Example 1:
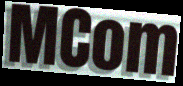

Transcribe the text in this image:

MCom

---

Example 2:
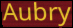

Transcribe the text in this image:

Aubry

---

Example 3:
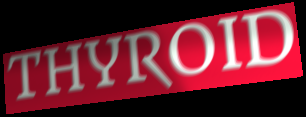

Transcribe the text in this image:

THYROID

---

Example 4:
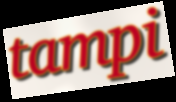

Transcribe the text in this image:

tampi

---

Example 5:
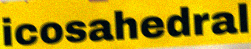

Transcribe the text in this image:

icosahedral